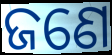
ଜଣେ